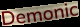
Demonic